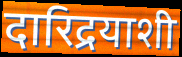
दारिद्रयाशी